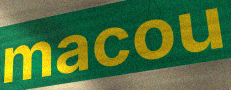
macou